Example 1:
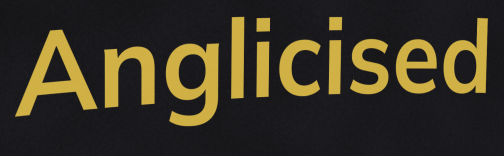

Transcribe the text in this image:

Anglicised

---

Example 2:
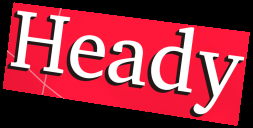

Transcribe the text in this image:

Heady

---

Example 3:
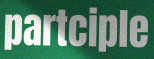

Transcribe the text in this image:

partciple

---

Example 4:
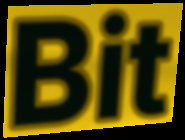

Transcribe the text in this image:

Bit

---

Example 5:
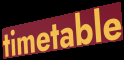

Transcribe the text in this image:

timetable